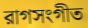
রাগসংগীত